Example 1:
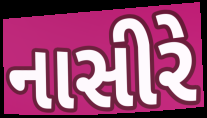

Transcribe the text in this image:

નાસીરે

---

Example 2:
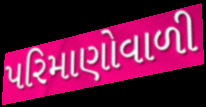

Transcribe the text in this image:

પરિમાણોવાળી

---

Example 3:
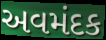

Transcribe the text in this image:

અવમંદક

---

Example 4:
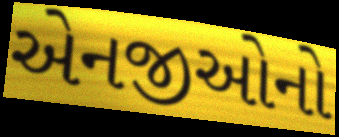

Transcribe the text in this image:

એનજીઓનો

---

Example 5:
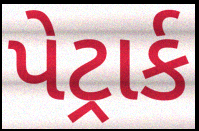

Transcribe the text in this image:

પેટ્રાર્ક